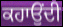
ਕਹਾਉਂਦੀ